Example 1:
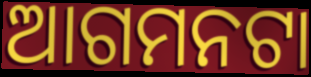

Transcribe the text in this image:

ଆଗମନଟା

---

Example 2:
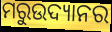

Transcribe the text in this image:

ମରୁଉଦ୍ୟାନର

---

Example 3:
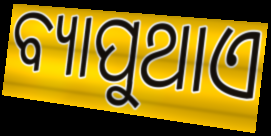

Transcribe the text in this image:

ବ୍ୟାପୁଥାଏ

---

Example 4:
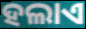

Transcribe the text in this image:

ହଲାଏ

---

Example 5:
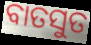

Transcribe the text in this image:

ବାତସୁତ